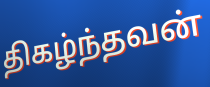
திகழ்ந்தவன்